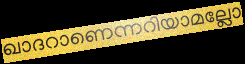
ഖാദറാണെന്നറിയാമല്ലോ